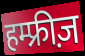
हम्फ्रीज़